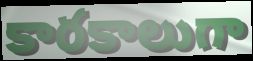
కారకాలుగా